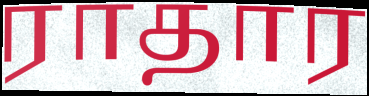
ராதார